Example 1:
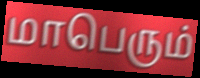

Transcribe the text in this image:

மாபெரும்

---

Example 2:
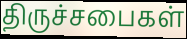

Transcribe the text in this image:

திருச்சபைகள்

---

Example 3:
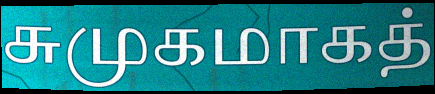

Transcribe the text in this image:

சுமுகமாகத்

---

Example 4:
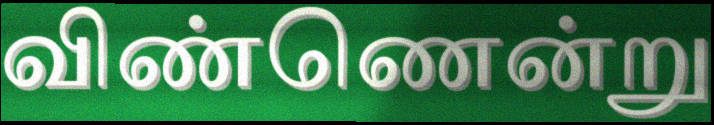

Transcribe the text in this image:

விண்ணென்று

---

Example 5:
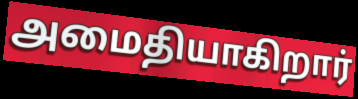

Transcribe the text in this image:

அமைதியாகிறார்